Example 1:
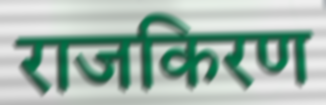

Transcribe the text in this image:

राजकिरण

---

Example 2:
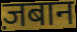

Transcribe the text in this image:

ज़बान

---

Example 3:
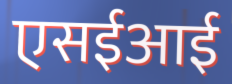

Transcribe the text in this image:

एसईआई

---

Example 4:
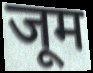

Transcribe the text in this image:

जूम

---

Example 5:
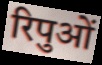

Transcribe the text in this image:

रिपुओं